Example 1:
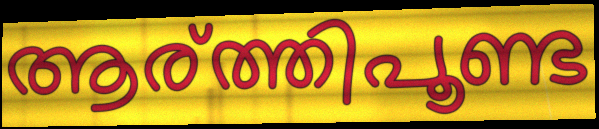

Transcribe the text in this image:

ആര്ത്തിപൂണ്ട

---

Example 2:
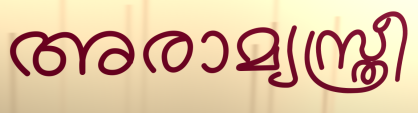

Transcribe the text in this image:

അരാമ്യസ്ത്രീ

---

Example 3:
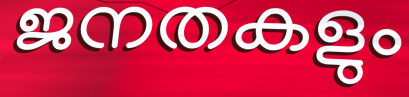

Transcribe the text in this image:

ജനതകളും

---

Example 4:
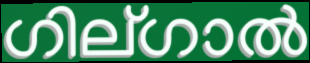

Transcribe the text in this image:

ഗില്ഗാൽ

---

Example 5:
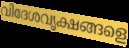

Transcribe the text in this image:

വിദേശവൃക്ഷങ്ങളെ